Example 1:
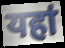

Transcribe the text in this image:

यहां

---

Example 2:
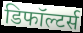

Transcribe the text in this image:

डिफॉल्टर्स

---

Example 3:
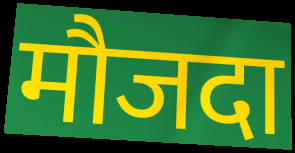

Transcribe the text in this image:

मौजदा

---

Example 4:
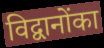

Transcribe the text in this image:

विद्वानोंका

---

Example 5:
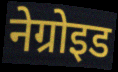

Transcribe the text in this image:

नेग्रोइड